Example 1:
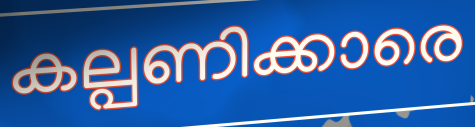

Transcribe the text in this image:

കല്പണിക്കാരെ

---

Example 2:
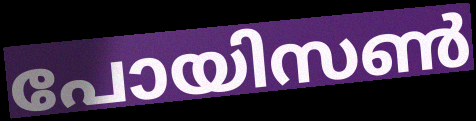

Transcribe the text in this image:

പോയിസൺ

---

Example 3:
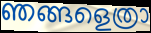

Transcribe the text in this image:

ഞങ്ങളെത്രാ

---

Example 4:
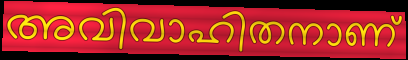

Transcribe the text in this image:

അവിവാഹിതനാണ്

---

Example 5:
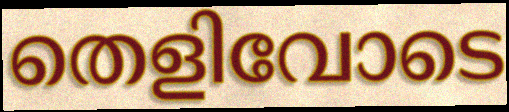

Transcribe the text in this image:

തെളിവോടെ